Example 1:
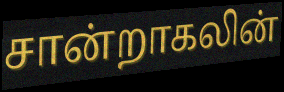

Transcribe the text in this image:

சான்றாகலின்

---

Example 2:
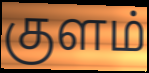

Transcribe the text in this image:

குளம்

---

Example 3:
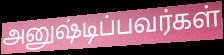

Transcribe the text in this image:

அனுஷ்டிப்பவர்கள்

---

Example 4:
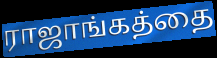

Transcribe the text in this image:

ராஜாங்கத்தை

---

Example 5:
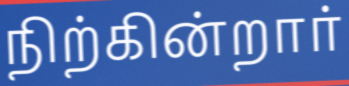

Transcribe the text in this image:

நிற்கின்றார்